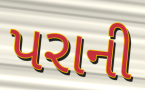
પરાની